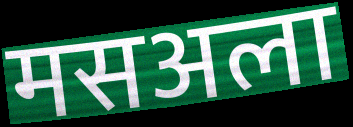
मसअला